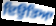
ਦਿਉਤਿਆ